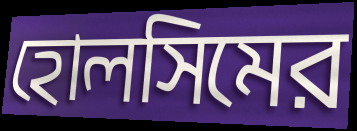
হোলসিমের